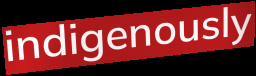
indigenously